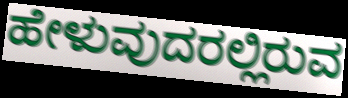
ಹೇಳುವುದರಲ್ಲಿರುವ